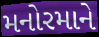
મનોરમાને